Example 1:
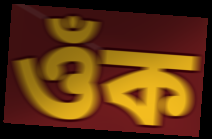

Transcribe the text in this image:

ওঁক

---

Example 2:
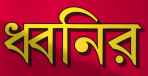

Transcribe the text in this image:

ধ্বনির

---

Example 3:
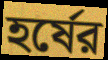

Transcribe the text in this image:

হর্ষের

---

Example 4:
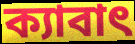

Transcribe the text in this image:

ক্যাবাৎ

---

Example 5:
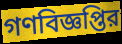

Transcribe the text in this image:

গণবিজ্ঞপ্তির